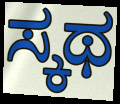
ಸ್ಕಥ